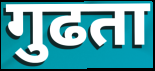
गुढता